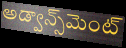
అడ్వాన్స్‌మెంట్